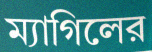
ম্যাগিলের